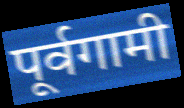
पूर्वगामी